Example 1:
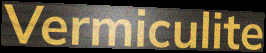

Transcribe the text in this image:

Vermiculite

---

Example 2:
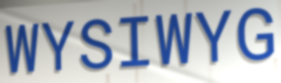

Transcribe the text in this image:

WYSIWYG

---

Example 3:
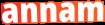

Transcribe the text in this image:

annam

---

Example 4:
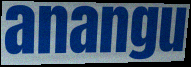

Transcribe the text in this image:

anangu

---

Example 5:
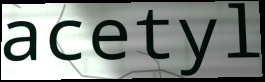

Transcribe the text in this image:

acetyl